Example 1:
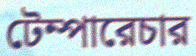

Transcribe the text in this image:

টেম্পারেচার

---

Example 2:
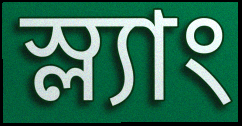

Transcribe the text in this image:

স্ল্যাং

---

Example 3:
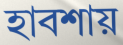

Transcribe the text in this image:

হাবশায়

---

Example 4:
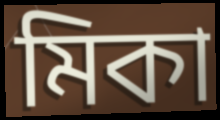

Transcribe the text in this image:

মিকা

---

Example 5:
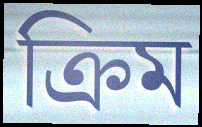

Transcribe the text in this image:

ক্রিম